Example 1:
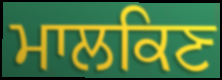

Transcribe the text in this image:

ਮਾਲਕਿਣ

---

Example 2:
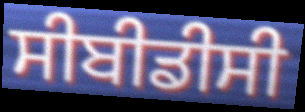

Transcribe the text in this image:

ਸੀਬੀਡੀਸੀ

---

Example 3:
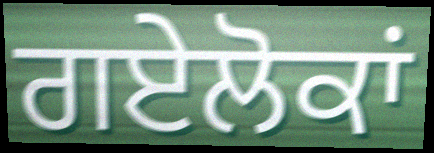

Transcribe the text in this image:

ਗਏਲੋਕਾਂ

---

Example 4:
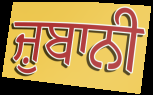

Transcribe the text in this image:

ਜ਼ੁਬਾਨੀ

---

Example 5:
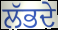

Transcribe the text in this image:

ਲੱਭਦੇ